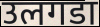
उलगडा